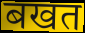
बखत